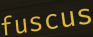
fuscus